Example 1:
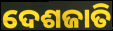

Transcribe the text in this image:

ଦେଶଜାତି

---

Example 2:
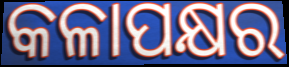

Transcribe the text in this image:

କଳାପକ୍ଷର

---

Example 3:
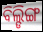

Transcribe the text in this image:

ବିଲ୍ଡିଙ୍ଗ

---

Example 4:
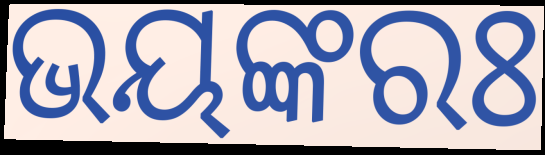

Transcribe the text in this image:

ଭୟଙ୍କରଃ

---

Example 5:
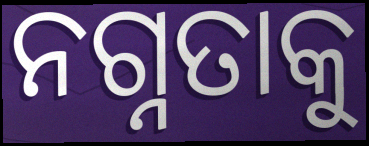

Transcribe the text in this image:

ନଗ୍ନତାକୁ